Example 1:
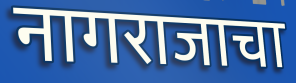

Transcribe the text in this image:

नागराजाचा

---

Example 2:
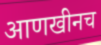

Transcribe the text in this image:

आणखीनच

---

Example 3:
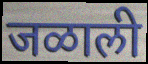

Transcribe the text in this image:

जळाली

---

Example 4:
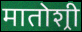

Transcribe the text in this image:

मातोश्री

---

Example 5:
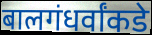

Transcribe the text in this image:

बालगंधर्वांकडे